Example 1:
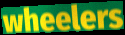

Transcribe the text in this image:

wheelers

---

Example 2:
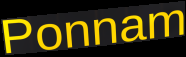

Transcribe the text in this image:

Ponnam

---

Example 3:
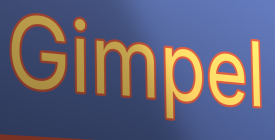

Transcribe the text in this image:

Gimpel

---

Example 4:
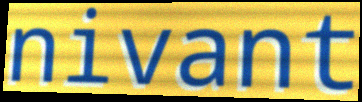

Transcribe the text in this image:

nivant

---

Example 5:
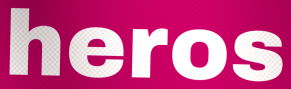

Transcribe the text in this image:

heros